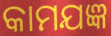
କାମଯଜ୍ଞ